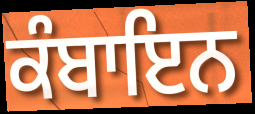
ਕੰਬਾਇਨ